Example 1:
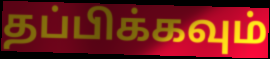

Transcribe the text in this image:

தப்பிக்கவும்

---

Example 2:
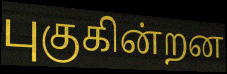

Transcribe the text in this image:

புகுகின்றன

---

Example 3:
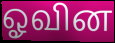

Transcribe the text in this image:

ஓவின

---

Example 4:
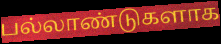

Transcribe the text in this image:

பல்லாண்டுகளாக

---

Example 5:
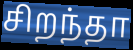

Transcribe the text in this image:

சிறந்தா